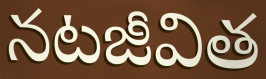
నటజీవిత